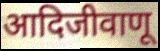
आदिजीवाणू